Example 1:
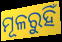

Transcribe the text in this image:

ମୂଳରୁହିଁ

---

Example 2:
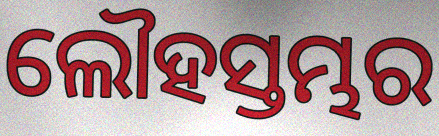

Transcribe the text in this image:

ଲୌହସ୍ତମ୍ଭର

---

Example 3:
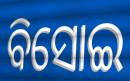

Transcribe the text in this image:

ବିସୋଇ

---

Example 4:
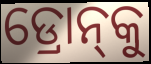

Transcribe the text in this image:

ଡ୍ରୋନ୍‌କୁ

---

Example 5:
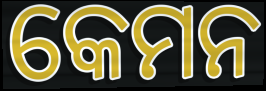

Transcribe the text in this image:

କେମନ